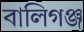
বালিগঞ্জ